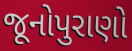
જૂનોપુરાણો